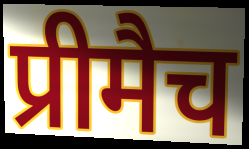
प्रीमैच